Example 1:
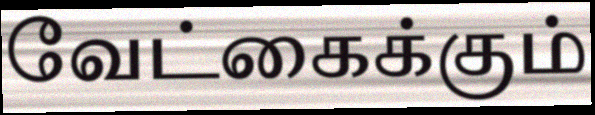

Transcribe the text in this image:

வேட்கைக்கும்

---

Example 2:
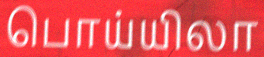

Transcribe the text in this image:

பொய்யிலா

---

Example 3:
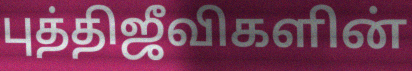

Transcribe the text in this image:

புத்திஜீவிகளின்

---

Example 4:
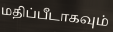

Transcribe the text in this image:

மதிப்பீடாகவும்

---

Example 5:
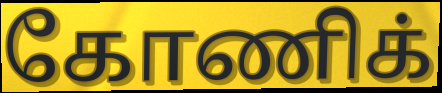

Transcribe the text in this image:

கோணிக்